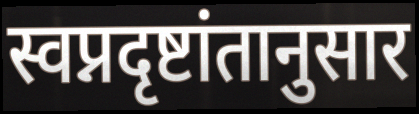
स्वप्नदृष्टांतानुसार